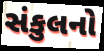
સંકુલનો